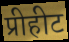
प्रीहीट